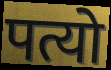
पत्यो